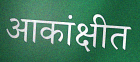
आकांक्षीत